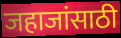
जहाजांसाठी